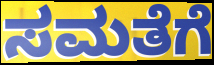
ಸಮತೆಗೆ